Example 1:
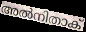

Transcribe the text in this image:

അൽനിതാക്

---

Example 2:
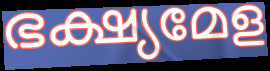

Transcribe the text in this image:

ഭക്ഷ്യമേള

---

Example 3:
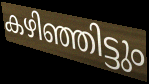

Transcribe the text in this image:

കഴിഞ്ഞിട്ടും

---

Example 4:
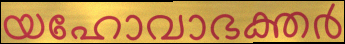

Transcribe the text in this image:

യഹോവാഭക്തർ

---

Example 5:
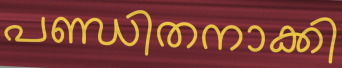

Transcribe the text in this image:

പണ്ഡിതനാക്കി